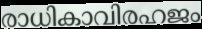
രാധികാവിരഹജം